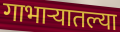
गाभाऱ्यातल्या